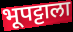
भूपट्टाला